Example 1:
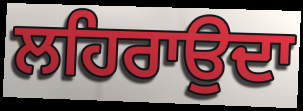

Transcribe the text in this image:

ਲਹਿਰਾਉਦਾ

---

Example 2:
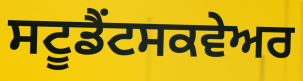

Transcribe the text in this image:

ਸਟੂਡੈਂਟਸਕਵੇਅਰ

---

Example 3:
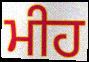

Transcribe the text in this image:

ਮੀਹ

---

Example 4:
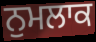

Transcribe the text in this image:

ਨੁਮਲਾਕ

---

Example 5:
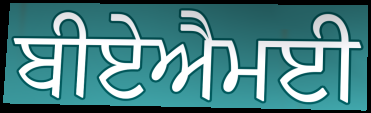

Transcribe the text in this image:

ਬੀਏਐਮਈ